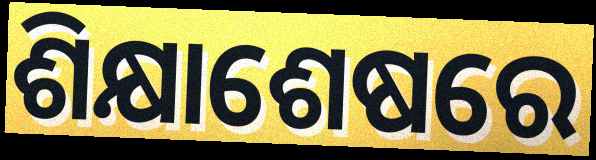
ଶିକ୍ଷାଶେଷରେ